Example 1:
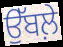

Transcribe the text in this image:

ਉੱਬਲ਼ੇ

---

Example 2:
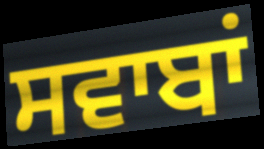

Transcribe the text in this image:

ਸਵਾਬਾਂ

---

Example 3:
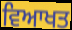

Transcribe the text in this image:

ਵਿਆਖਤ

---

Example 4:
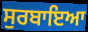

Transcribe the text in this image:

ਸੁਰਬਾਇਆ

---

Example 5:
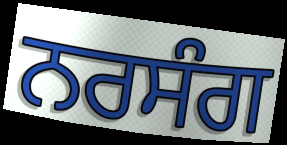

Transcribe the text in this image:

ਨਰਸੰਗ